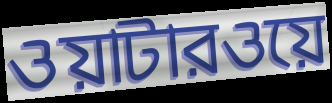
ওয়াটারওয়ে